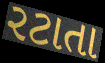
રટાતા